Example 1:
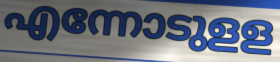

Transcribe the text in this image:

എന്നോടുളള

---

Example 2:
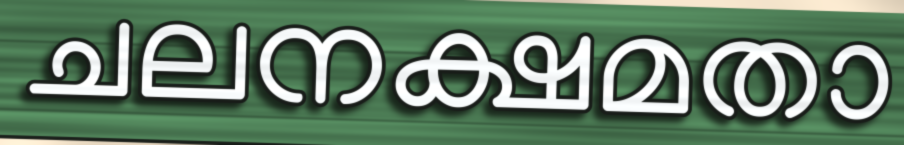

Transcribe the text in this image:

ചലനക്ഷമതാ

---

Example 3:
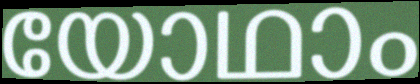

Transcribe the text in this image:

യോഥാം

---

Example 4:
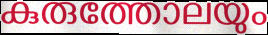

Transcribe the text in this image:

കുരുത്തോലയും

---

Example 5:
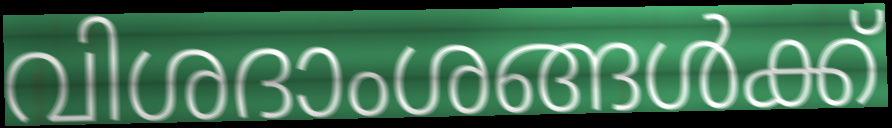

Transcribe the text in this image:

വിശദാംശങ്ങൾക്ക്